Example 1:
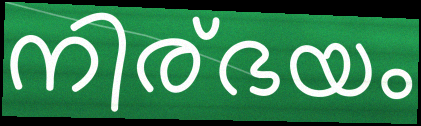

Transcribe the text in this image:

നിര്ഭയം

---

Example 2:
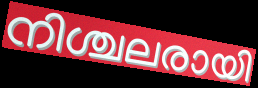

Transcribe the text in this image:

നിശ്ചലരായി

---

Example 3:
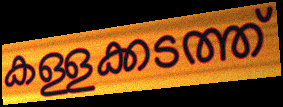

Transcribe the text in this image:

കള്ളക്കടത്ത്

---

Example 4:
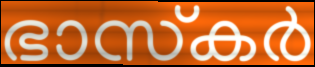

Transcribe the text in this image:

ഭാസ്‌കർ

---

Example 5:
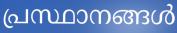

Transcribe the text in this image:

പ്രസ്ഥാനങ്ങൾ